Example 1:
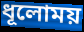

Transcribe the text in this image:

ধূলোময়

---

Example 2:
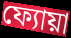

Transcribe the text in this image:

ফ্যোয়া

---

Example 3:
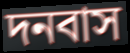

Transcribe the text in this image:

দনবাস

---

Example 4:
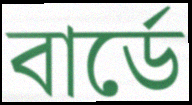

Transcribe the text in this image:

বার্ডে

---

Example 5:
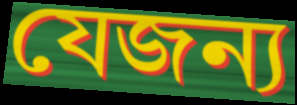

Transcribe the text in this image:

যেজন্য